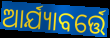
ଆର୍ଯ୍ୟାବର୍ତ୍ତେ